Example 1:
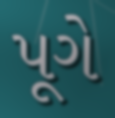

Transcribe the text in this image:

પૂગે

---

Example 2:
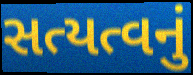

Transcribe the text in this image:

સત્યત્વનું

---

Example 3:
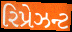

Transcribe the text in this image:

રિપ્રેઝન્ટ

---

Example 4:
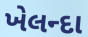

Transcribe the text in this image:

ખેલન્દા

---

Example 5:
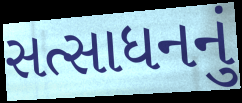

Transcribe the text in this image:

સત્સાધનનું